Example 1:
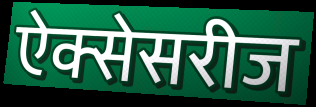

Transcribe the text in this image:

ऐक्सेसरीज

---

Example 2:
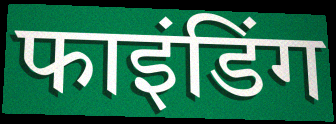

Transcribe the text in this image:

फाइंडिंग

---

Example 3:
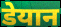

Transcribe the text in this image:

डेयान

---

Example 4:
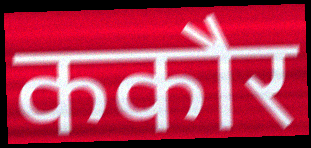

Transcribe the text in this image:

ककौर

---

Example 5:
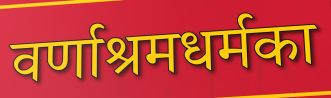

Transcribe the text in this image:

वर्णाश्रमधर्मका